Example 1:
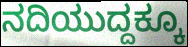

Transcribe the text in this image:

ನದಿಯುದ್ದಕ್ಕೂ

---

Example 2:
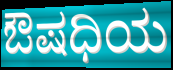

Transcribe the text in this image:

ಔಷಧಿಯ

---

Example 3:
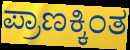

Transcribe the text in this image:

ಪ್ರಾಣಕ್ಕಿಂತ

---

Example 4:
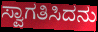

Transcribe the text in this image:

ಸ್ವಾಗತಿಸಿದನು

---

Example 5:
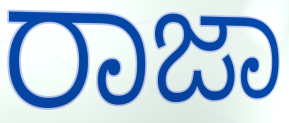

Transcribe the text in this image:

ರಾಜಾ